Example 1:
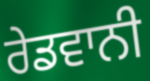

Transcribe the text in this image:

ਰੇਡਵਾਨੀ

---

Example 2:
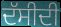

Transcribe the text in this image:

ਦੱਸੀਦੀ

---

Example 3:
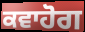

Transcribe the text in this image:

ਕਵਾਹੋਗ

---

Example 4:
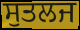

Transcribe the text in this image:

ਸੁਤਲਜ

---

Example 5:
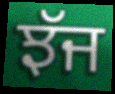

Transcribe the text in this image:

ਝੱਜ